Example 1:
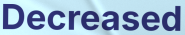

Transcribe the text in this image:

Decreased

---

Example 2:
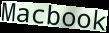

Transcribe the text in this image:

Macbook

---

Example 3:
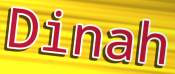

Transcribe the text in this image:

Dinah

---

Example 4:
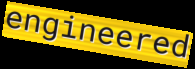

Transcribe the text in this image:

engineered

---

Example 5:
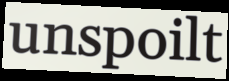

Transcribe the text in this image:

unspoilt